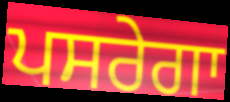
ਪਸਰੇਗਾ